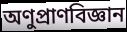
অণুপ্রাণবিজ্ঞান